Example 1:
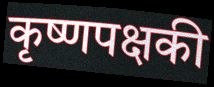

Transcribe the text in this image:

कृष्णपक्षकी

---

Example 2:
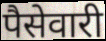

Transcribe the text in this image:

पैसेवारी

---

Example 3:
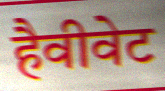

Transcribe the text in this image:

हैवीवेट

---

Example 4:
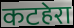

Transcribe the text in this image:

कटहेरा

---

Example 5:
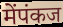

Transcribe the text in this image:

मेंपंकज